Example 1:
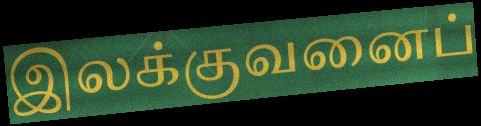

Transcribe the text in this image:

இலக்குவனைப்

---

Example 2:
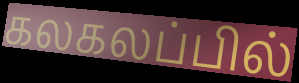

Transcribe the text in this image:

கலகலப்பில்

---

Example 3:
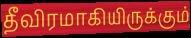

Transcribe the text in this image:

தீவிரமாகியிருக்கும்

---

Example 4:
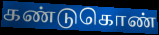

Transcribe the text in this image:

கண்டுகொண்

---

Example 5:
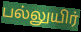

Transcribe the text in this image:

பல்லுயிர்